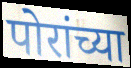
पोरांच्या